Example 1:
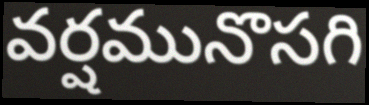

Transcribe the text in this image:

వర్షమునొసగి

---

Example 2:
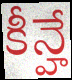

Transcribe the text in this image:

కీన్హే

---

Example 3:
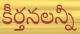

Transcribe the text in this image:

కీర్తనలన్నీ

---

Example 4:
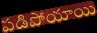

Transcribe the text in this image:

పడిపోయాయి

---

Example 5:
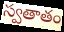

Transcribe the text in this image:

స్వతాతం